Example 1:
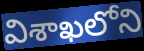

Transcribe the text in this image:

విశాఖలోని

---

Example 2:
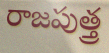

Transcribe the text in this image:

రాజపుత్త్ర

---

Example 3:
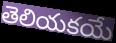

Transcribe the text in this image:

తెలియకయే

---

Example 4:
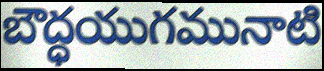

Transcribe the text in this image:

బౌద్ధయుగమునాటి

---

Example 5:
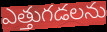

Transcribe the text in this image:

ఎత్తుగడలను